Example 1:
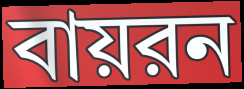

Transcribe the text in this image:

বায়রন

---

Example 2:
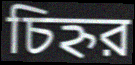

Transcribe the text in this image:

চিহ্নর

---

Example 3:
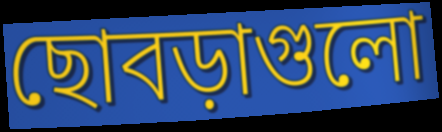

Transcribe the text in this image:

ছোবড়াগুলো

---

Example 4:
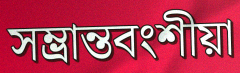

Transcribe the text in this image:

সম্ভ্রান্তবংশীয়া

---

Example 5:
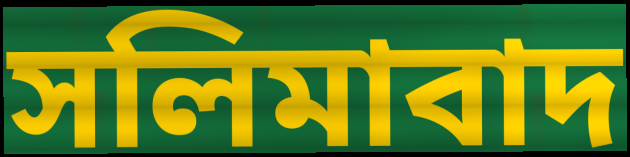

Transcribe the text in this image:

সলিমাবাদ